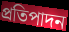
প্রতিপাদন